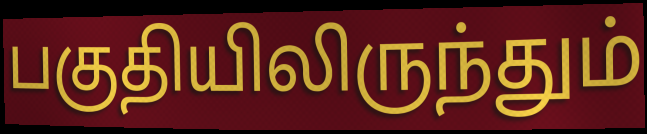
பகுதியிலிருந்தும்